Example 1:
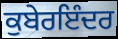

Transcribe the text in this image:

ਕੁਬੇਰਇੰਦਰ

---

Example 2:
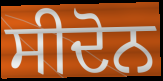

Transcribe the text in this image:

ਸੀਦੋਨ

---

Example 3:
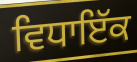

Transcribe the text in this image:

ਵਿਧਾਇੱਕ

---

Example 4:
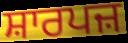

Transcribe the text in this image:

ਸ਼ਾਰਪਜ਼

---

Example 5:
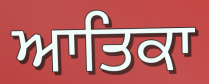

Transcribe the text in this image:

ਆਤਿਕਾ